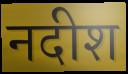
नदीश